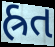
હ્રત